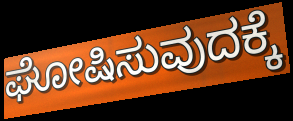
ಘೋಷಿಸುವುದಕ್ಕೆ